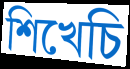
শিখেচি